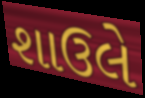
શાઉલે